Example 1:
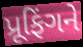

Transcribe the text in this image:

પ્રૂફિંગને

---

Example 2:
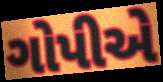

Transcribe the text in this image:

ગોપીએ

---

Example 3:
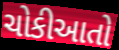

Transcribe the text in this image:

ચોકીઆતો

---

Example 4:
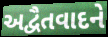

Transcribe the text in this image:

અદ્વૈતવાદને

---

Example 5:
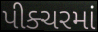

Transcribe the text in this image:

પીક્ચરમાં